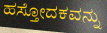
ಹಸ್ತೋದಕವನ್ನು